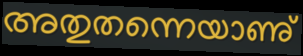
അതുതന്നെയാണു്